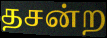
தசன்ற